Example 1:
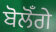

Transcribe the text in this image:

ਬੋਲੋਁਗੇ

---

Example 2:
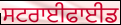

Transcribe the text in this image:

ਸਟਰਾਈਫਾਈਡ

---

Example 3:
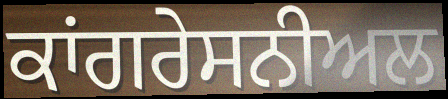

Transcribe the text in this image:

ਕਾਂਗਰੇਸਨੀਅਲ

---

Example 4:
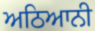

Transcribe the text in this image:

ਅਠਿਆਨੀ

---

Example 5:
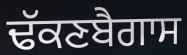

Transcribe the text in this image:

ਢੱਕਣਬੈਗਾਸ